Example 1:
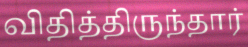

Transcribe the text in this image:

விதித்திருந்தார்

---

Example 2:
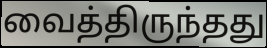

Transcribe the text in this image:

வைத்திருந்தது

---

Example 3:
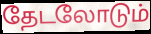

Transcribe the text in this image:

தேடலோடும்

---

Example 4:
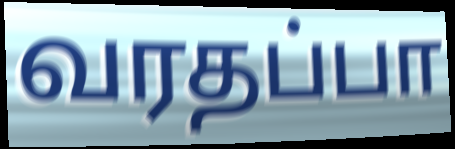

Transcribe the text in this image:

வரதப்பா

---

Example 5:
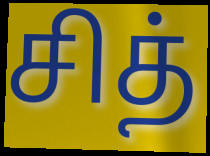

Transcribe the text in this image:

சித்